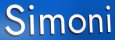
Simoni